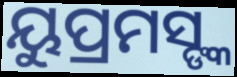
ୟୁପ୍ରମସ୍ଙ୍କ